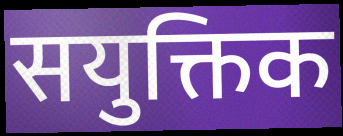
सयुक्तिक